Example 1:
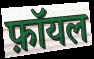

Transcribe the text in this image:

फ़ॉयल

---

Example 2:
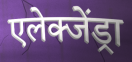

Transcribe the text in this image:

एलेक्जेंड्रा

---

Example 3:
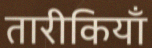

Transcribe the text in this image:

तारीकियाँ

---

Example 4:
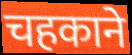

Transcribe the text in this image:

चहकाने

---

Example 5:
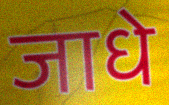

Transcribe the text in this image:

जाधे